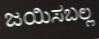
ಜಯಿಸಬಲ್ಲ